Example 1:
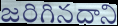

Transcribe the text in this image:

జరిగినదాని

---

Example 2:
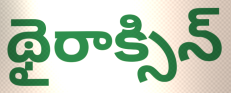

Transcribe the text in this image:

థైరాక్సిన్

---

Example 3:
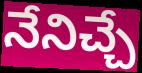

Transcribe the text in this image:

నేనిచ్చే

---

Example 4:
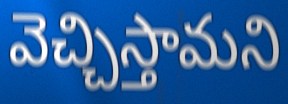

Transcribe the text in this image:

వెచ్చిస్తామని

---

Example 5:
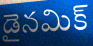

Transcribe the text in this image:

డైనమిక్